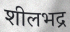
शीलभद्र